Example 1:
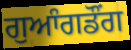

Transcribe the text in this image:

ਗੁਆੰਗਡੌਂਗ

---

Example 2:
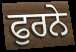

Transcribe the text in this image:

ਫੁਰਨੇ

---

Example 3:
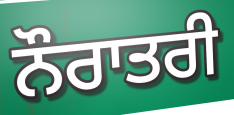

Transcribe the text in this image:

ਨੌਰਾਤਰੀ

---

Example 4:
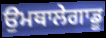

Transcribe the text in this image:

ਉਮਥਾਲੇਗਾਡੂ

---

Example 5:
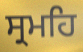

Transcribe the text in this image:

ਸ੍ਰਮਹਿ